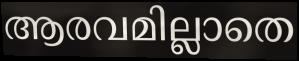
ആരവമില്ലാതെ